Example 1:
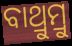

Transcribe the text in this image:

ବାଥ୍ରୁମ୍ରୁ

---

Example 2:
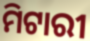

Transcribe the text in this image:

ମିଟାରୀ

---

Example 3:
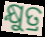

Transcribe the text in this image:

କ୍ଷୁତ୍ର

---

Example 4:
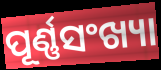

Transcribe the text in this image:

ପୂର୍ଣ୍ଣସଂଖ୍ୟା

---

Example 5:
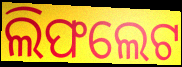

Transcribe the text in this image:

ଲିଫଲେଟ